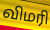
விமரி